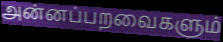
அன்னப்பறவைகளும்